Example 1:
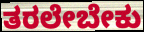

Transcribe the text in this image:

ತರಲೇಬೇಕು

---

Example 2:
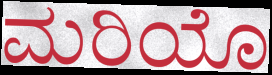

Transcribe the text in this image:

ಮರಿಯೊ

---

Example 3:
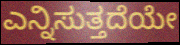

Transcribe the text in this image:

ಎನ್ನಿಸುತ್ತದೆಯೇ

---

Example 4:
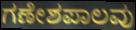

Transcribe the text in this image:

ಗಣೇಶಪಾಲವು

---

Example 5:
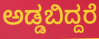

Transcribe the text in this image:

ಅಡ್ಡಬಿದ್ದರೆ